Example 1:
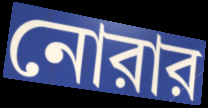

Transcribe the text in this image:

নোরার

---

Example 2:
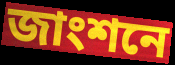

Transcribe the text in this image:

জাংশনে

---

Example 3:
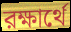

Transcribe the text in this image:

রক্ষার্থে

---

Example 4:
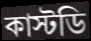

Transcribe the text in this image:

কাস্টডি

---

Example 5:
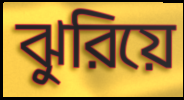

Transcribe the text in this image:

ঝুরিয়ে